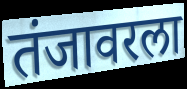
तंजावरला